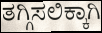
ತಗ್ಗಿಸಲಿಕ್ಕಾಗಿ